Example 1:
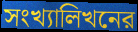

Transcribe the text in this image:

সংখ্যালিখনের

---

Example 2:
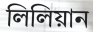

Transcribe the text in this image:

লিলিয়ান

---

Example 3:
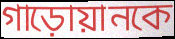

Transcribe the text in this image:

গাড়োয়ানকে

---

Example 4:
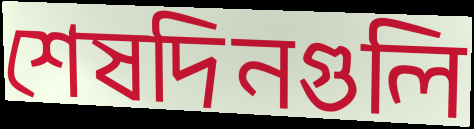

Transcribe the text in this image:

শেষদিনগুলি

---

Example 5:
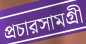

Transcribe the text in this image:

প্রচারসামগ্রী